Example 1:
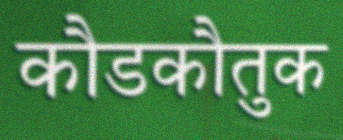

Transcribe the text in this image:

कौडकौतुक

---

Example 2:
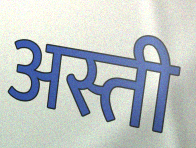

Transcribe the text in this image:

अस्ती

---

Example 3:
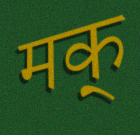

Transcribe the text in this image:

मक्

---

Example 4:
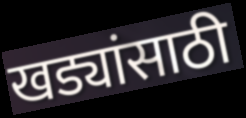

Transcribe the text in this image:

खड्यांसाठी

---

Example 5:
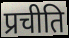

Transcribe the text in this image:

प्रचीति